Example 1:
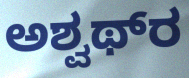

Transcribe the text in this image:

ಅಶ್ವಥ್‌ರ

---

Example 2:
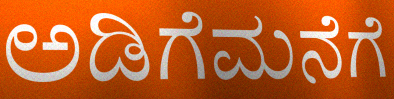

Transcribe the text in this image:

ಅಡಿಗೆಮನೆಗೆ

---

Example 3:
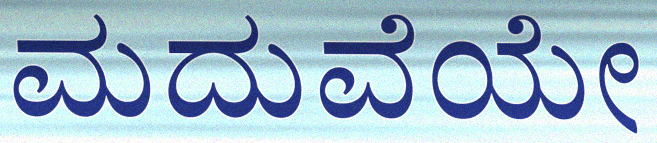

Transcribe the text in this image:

ಮದುವೆಯೇ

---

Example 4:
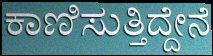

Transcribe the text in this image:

ಕಾಣಿಸುತ್ತಿದ್ದೇನೆ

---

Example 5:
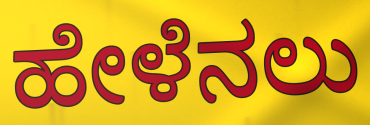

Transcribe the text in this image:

ಹೇಳೆನಲು